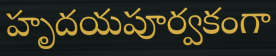
హృదయపూర్వకంగా